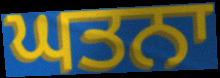
ਘਤਨਾ